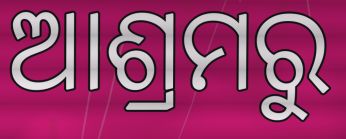
ଆଶ୍ରମରୁ